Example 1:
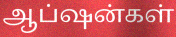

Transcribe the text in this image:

ஆப்ஷன்கள்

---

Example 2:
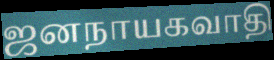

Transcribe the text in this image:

ஜனநாயகவாதி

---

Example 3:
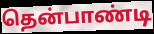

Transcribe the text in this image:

தென்பாண்டி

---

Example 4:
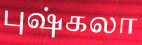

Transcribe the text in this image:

புஷ்கலா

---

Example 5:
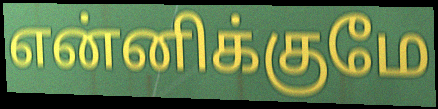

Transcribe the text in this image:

என்னிக்குமே